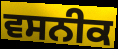
ਵਸਨੀਕ